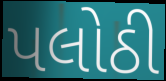
પલોઠી